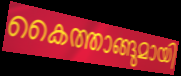
കൈത്താങ്ങുമായി